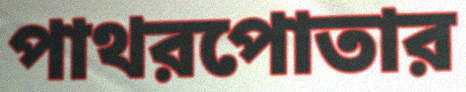
পাথরপোতার